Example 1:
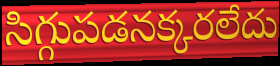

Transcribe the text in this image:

సిగ్గుపడనక్కరలేదు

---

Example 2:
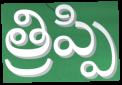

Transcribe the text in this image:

త్రిప్పి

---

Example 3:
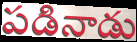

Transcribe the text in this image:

పడినాడు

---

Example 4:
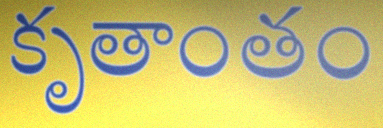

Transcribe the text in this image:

కృతాంతం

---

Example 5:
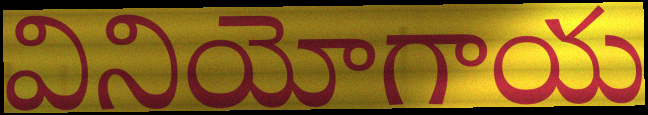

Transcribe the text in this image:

వినియోగాయ